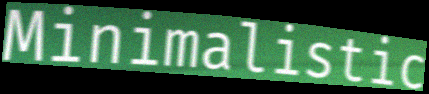
Minimalistic